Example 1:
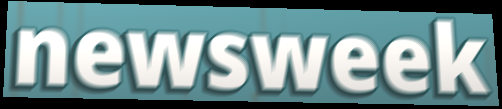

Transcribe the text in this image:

newsweek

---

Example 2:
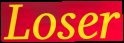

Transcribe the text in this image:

Loser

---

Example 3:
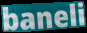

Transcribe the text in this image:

baneli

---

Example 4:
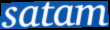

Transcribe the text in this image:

satam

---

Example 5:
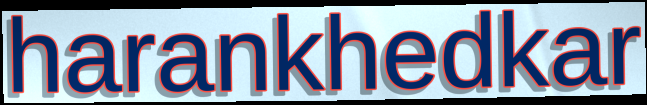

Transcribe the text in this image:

harankhedkar